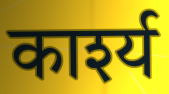
कार्श्य